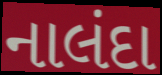
નાલંદા